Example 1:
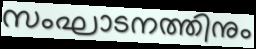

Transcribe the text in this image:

സംഘാടനത്തിനും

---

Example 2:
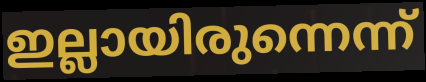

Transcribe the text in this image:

ഇല്ലായിരുന്നെന്ന്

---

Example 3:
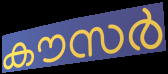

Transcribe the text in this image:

കൗസർ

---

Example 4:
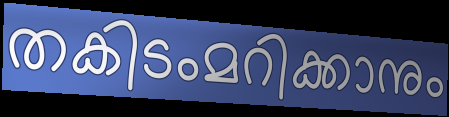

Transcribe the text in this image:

തകിടംമറിക്കാനും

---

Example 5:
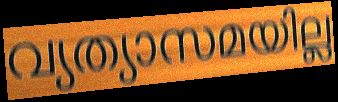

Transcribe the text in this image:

വ്യത്യാസമയില്ല